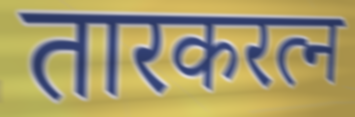
तारकरत्न